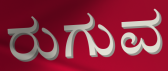
ರುಗುವ